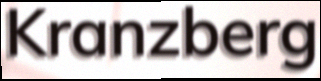
Kranzberg